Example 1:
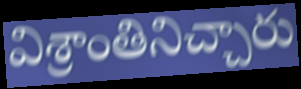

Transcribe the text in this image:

విశ్రాంతినిచ్చారు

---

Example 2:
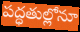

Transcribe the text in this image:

పద్ధతుల్లోనూ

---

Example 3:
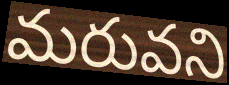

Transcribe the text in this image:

మరువని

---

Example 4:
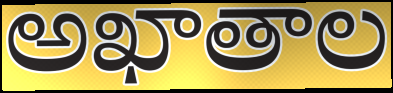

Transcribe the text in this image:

అఖాతాల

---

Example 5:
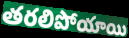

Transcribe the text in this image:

తరలిపోయాయి